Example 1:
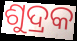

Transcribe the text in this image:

ଶୁଦ୍ରକ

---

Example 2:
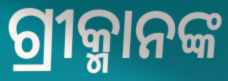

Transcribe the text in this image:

ଗ୍ରୀକ୍ମାନଙ୍କ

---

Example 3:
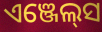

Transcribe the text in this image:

ଏଞ୍ଜେଲ୍‍ସ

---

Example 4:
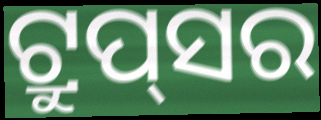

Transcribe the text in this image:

ଟ୍ରୁପ୍‌ସର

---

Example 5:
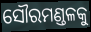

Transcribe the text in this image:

ସୌରମଣ୍ଡଳକୁ